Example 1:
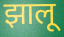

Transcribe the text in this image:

झालू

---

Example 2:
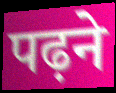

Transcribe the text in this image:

पढ़ने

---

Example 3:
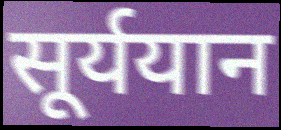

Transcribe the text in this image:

सूर्ययान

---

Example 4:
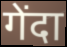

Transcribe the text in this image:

गेंदा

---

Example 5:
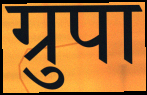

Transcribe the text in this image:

ग्रुपा